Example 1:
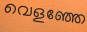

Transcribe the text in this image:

വെളഞ്ഞേ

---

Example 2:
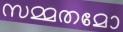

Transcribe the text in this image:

സമ്മതമോ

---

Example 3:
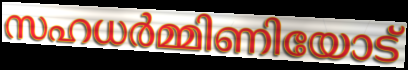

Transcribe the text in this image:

സഹധർമ്മിണിയോട്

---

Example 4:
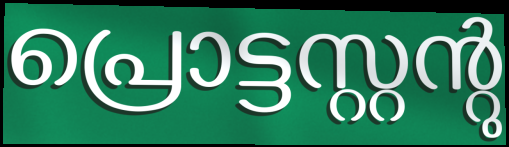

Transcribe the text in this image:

പ്രൊട്ടസ്റ്റന്റു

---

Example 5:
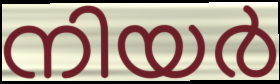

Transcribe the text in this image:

നിയർ